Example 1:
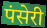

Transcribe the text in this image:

पंसेरी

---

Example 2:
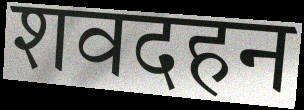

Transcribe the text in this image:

शवदहन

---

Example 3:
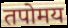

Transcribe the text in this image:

तपोमय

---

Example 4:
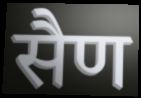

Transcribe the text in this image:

सैण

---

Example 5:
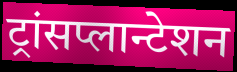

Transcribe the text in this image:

ट्रांसप्लान्टेशन